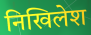
निखिलेश